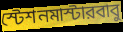
স্টেশনমাস্টারবাবু